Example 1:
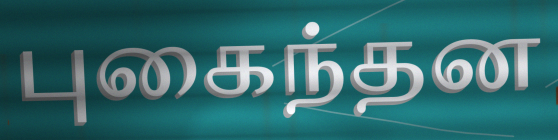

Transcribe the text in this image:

புகைந்தன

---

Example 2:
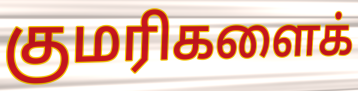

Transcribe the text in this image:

குமரிகளைக்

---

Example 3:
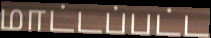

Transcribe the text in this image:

மாட்டப்பட்ட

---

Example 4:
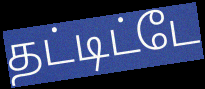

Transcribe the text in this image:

தட்டிட்டே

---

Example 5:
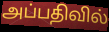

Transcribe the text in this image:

அப்பதிவில்